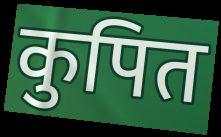
कुपित